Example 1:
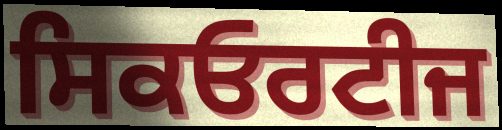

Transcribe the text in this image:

ਸਿਕਓਰਟੀਜ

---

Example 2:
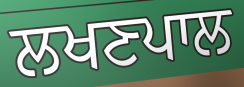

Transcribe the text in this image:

ਲਖਣਪਾਲ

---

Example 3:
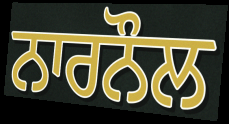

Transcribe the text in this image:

ਨਾਰਨੌਲ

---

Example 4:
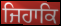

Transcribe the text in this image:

ਜਿਹਾਕਿ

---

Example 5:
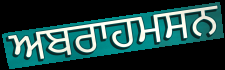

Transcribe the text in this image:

ਅਬਰਾਹਮਸਨ